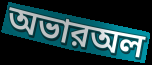
অভারঅল